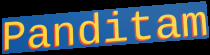
Panditam